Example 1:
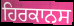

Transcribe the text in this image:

ਹਿਰਕਾਨਸ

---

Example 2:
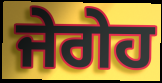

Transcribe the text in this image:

ਜੇਗੇਹ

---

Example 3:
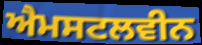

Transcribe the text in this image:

ਐਮਸਟਲਵੀਨ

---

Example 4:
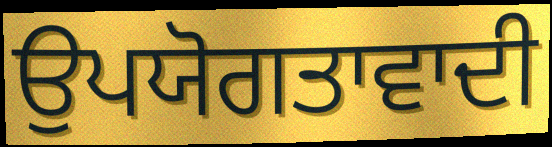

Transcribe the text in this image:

ਉਪਯੋਗਤਾਵਾਦੀ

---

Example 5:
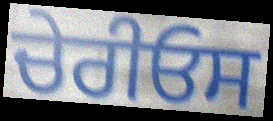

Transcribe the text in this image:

ਚੇਰੀਓਸ